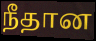
நீதான